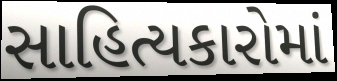
સાહિત્યકારોમાં